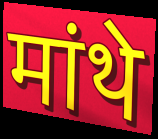
मांथे